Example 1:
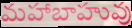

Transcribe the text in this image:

మహాబాహువు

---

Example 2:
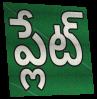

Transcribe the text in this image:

ప్లేట్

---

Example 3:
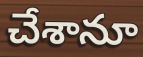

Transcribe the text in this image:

చేశానూ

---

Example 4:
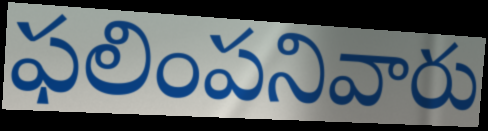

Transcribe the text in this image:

ఫలింపనివారు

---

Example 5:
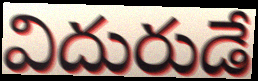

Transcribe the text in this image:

విదురుడే